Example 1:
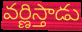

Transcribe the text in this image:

వర్ణిస్తాడు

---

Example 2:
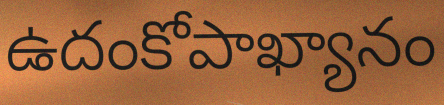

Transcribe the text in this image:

ఉదంకోపాఖ్యానం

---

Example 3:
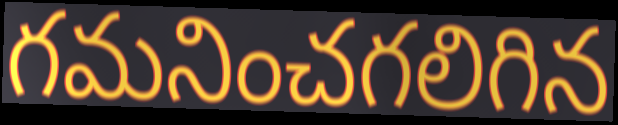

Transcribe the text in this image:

గమనించగలిగిన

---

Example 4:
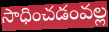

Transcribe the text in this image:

సాధించడంవల్ల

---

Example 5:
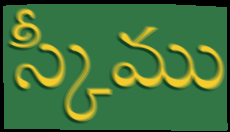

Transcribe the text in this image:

స్కీము